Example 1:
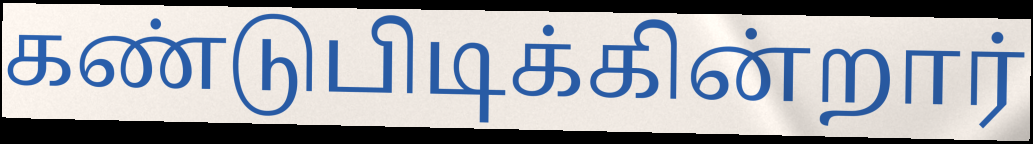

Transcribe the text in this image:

கண்டுபிடிக்கின்றார்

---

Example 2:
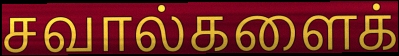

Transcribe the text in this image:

சவால்களைக்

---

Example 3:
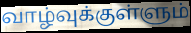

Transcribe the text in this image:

வாழ்வுக்குள்ளும்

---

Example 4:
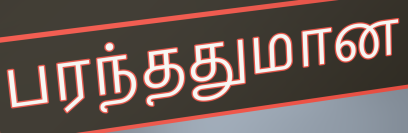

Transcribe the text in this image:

பரந்ததுமான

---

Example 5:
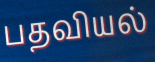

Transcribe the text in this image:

பதவியல்